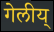
गेलीय्